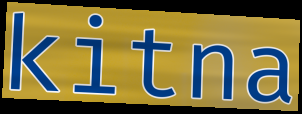
kitna